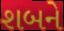
શબને